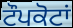
ਟੌਪਕੋਟਾਂ